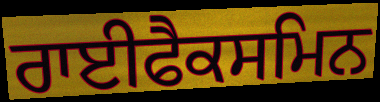
ਰਾਈਫੈਕਸਮਿਨ